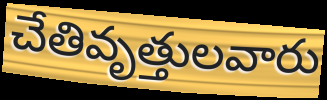
చేతివృత్తులవారు